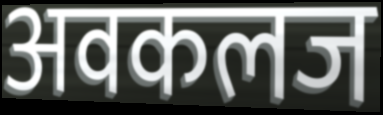
अवकलज